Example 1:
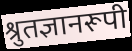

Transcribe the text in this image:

श्रुतज्ञानरूपी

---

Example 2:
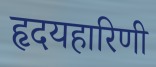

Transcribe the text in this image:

हृदयहारिणी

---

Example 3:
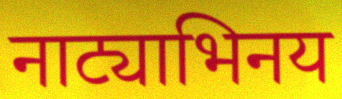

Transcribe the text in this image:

नाट्याभिनय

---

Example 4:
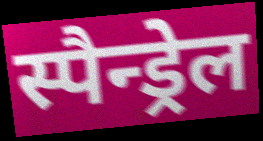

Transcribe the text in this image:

स्पैन्ड्रेल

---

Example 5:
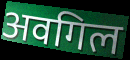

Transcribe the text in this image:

अवगिल